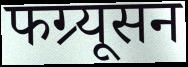
फग्र्यूसन